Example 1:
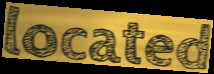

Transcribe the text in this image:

located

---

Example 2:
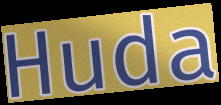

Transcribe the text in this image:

Huda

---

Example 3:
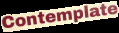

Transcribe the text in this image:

Contemplate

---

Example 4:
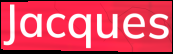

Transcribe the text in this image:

Jacques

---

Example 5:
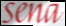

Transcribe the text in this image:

sena